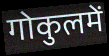
गोकुलमें